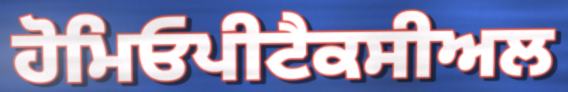
ਹੋਮਿਓਪੀਟੈਕਸੀਅਲ